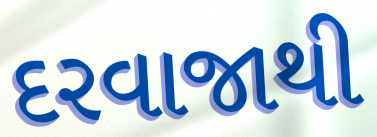
દરવાજાથી